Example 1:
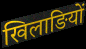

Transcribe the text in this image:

खिलाङियों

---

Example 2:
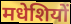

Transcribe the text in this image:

मधेशियों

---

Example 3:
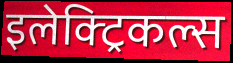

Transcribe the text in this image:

इलेक्ट्रिकल्‍स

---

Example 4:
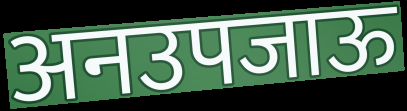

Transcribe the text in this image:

अनउपजाऊ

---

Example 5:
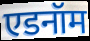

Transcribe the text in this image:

एडनॉम